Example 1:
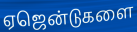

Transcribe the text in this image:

ஏஜென்டுகளை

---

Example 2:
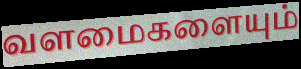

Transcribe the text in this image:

வளமைகளையும்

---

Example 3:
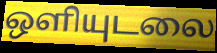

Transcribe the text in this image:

ஒளியுடலை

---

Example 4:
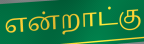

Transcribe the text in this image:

என்றாட்கு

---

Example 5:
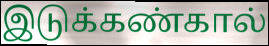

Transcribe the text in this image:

இடுக்கண்கால்